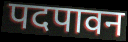
पदपावन